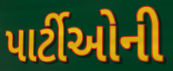
પાર્ટીઓની